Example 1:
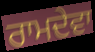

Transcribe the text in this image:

ਰਾਮਦੇਵਾ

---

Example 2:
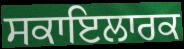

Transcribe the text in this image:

ਸਕਾਇਲਾਰਕ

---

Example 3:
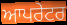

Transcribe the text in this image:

ਆਪਰੇਟਰ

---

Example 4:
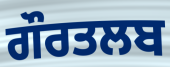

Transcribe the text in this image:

ਗੌਰਤਲਬ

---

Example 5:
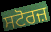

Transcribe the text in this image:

ਸਟੋਰਜ਼